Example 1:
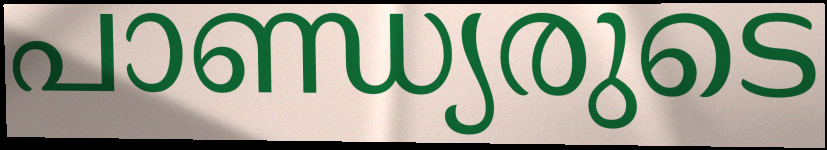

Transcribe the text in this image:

പാണ്ഡ്യരുടെ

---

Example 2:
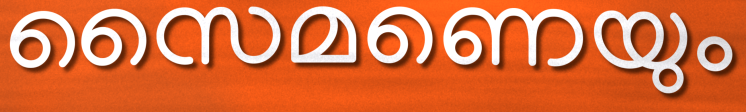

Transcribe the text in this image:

സൈമണെയും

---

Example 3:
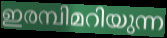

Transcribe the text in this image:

ഇരമ്പിമറിയുന്ന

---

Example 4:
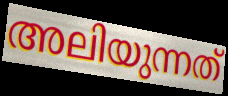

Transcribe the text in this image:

അലിയുന്നത്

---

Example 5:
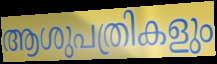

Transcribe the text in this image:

ആശുപത്രികളും